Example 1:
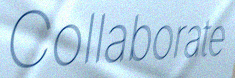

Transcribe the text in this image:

Collaborate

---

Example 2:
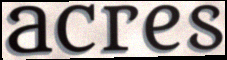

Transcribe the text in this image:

acres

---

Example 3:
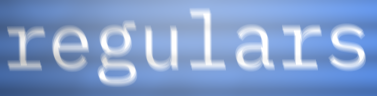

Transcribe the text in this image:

regulars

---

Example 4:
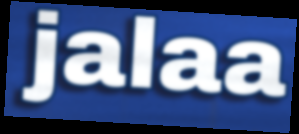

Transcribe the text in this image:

jalaa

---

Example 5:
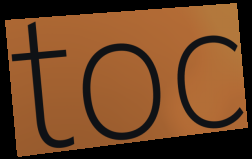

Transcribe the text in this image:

toc